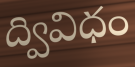
ద్వివిధం